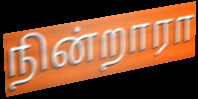
நின்றாரா